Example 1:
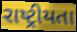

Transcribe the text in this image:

રાષ્ટ્રીયતા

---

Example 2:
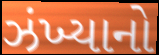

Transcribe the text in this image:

ઝંખ્યાનો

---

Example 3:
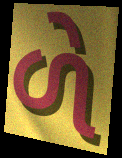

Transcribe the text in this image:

ળે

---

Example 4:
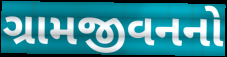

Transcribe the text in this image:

ગ્રામજીવનનો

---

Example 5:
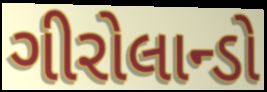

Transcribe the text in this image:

ગીરોલાન્ડો